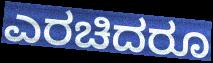
ಎರಚಿದರೂ